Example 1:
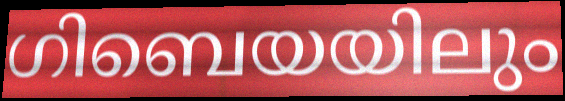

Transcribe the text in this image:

ഗിബെയയിലും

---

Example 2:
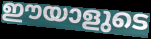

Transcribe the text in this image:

ഈയാളുടെ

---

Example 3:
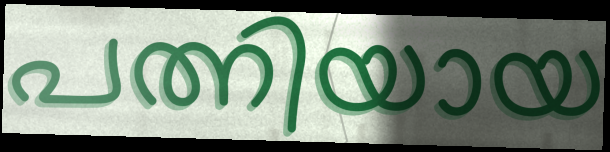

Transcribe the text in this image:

പത്നിയായ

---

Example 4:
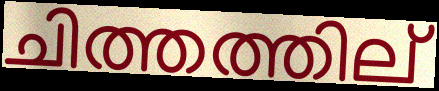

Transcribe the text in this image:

ചിത്തത്തില്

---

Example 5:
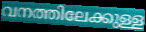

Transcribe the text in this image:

വനത്തിലേക്കുള്ള